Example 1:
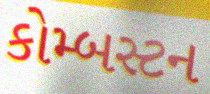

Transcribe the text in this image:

કોમ્બસ્ટન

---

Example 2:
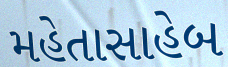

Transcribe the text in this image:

મહેતાસાહેબ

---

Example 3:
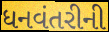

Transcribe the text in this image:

ધનવંતરીની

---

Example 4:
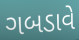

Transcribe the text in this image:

ગબડાવે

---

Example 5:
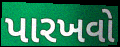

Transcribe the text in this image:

પારખવો